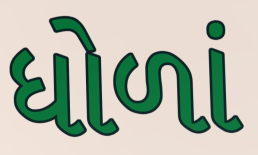
ધોળાં